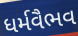
ધર્મવૈભવ